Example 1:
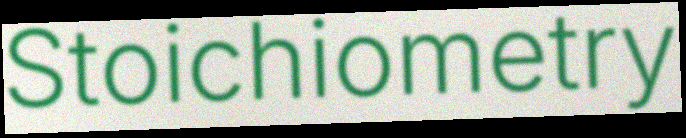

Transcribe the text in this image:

Stoichiometry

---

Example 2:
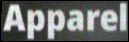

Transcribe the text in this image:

Apparel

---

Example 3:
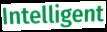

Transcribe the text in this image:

Intelligent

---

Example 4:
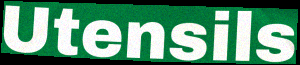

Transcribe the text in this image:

Utensils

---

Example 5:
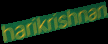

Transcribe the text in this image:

harikrishnan